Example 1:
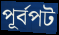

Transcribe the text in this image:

পূর্বপট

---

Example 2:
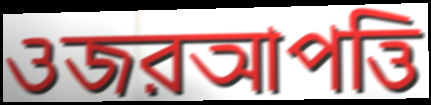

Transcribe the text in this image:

ওজরআপত্তি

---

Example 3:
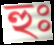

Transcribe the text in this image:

হুঃ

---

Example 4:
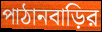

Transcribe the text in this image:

পাঠানবাড়ির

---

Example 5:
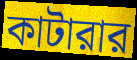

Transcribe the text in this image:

কাটারার